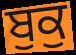
ਬੁਕੁ